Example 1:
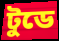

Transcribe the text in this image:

টুডে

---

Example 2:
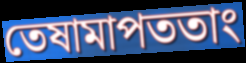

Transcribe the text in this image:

তেষামাপততাং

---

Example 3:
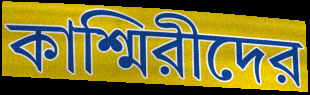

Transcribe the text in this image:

কাশ্মিরীদের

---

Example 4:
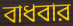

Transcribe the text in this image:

বাধবার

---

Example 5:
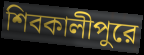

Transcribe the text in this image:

শিবকালীপুরে